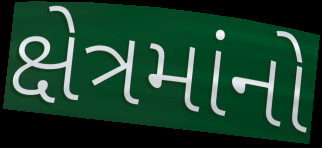
ક્ષેત્રમાંનો